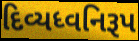
દિવ્યધ્વનિરૂપ